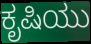
ಕೃಷಿಯು